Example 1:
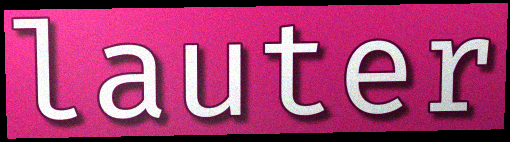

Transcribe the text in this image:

lauter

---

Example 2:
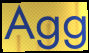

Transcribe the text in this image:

Agg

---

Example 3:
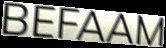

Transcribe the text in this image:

BEFAAM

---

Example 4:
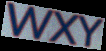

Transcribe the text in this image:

WXY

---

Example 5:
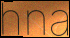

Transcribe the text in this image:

hna